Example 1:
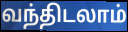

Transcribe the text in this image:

வந்திடலாம்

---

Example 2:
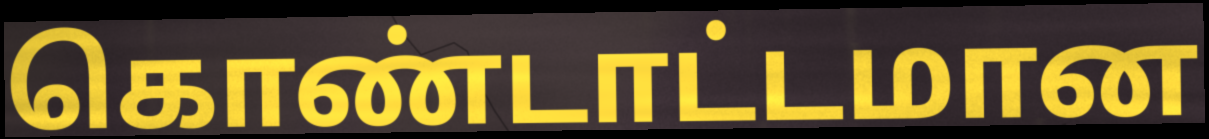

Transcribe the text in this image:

கொண்டாட்டமான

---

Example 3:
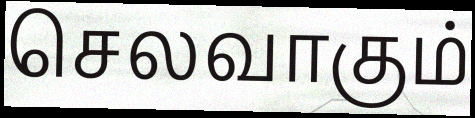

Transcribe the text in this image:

செலவாகும்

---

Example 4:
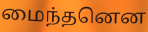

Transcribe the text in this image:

மைந்தனென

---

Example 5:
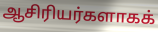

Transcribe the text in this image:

ஆசிரியர்களாகக்